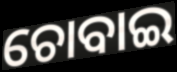
ଚୋବାଇ